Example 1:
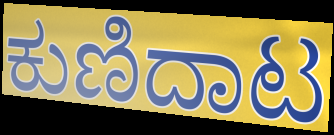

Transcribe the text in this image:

ಕುಣಿದಾಟ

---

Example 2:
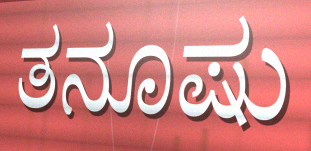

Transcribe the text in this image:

ತನೂಷು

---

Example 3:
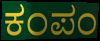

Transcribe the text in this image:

ಕಂಪಂ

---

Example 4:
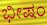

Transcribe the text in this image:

ಭೀಷಂ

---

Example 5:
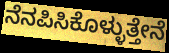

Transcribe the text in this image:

ನೆನಪಿಸಿಕೊಳ್ಳುತ್ತೇನೆ